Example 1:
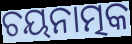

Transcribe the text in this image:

ଚୟନାତ୍ମକ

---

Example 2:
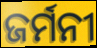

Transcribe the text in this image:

ଜର୍ମନୀ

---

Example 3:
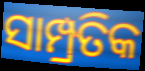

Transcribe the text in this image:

ସାମ୍ପ୍ରତିକ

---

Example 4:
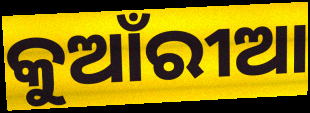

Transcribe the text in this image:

କୁଆଁରୀଆ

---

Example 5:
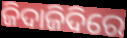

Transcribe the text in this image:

ଜିଦାଜିଦିରେ